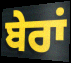
ਬੇਰਾਂ